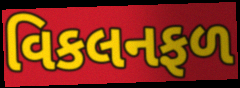
વિકલનફળ